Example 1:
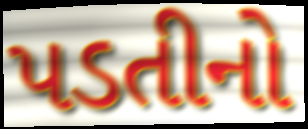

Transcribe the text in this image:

પડતીનો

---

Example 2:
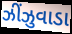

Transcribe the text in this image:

ઝીંઝુવાડા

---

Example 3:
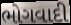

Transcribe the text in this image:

ભોગવાદી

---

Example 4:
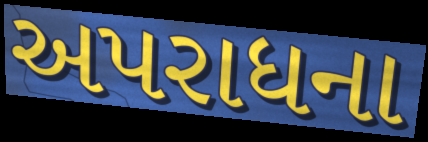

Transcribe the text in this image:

અપરાધના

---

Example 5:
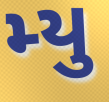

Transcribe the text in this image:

મ્યુ